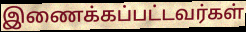
இணைக்கப்பட்டவர்கள்